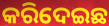
କରିଦେଇଛ